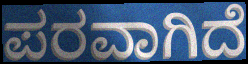
ಪರವಾಗಿದೆ